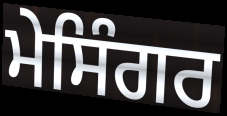
ਮੇਸਿੰਗਰ